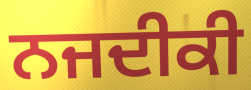
ਨਜਦੀਕੀ